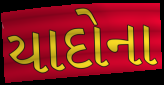
યાદોના